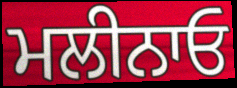
ਮਲੀਨਾਓ